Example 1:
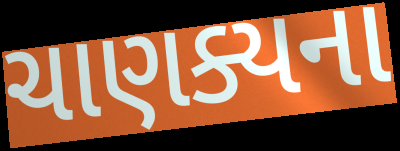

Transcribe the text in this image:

ચાણક્યના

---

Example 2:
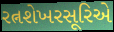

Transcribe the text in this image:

રત્નશેખરસૂરિએ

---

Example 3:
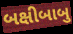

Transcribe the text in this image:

બક્ષીબાબુ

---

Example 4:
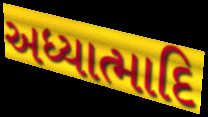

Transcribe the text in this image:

અધ્યાત્માદિ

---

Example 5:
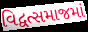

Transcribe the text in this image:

વિદ્વત્સમાજમાં